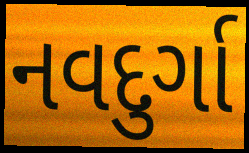
નવદુર્ગા